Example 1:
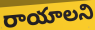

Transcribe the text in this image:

రాయాలని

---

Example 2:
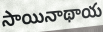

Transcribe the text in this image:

సాయినాథాయ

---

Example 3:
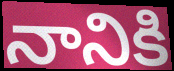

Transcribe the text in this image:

నానికి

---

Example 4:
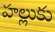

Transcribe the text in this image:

హల్లుకు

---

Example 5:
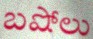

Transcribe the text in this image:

బషోలు